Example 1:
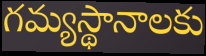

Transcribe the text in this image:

గమ్యస్థానాలకు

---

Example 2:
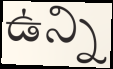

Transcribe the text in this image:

ఉన్ని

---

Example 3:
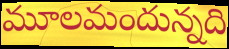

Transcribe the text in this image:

మూలమందున్నది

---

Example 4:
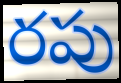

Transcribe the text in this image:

రపు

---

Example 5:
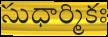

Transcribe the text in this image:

సుధార్మికః